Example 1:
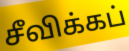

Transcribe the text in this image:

சீவிக்கப்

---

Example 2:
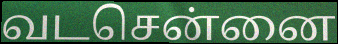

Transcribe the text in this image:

வடசென்னை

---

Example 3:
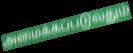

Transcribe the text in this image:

அமைக்கப்படுவதும்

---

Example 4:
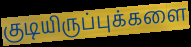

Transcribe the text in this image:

குடியிருப்புக்களை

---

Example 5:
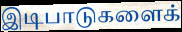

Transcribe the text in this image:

இடிபாடுகளைக்